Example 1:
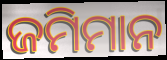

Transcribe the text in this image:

ଜମିମାନ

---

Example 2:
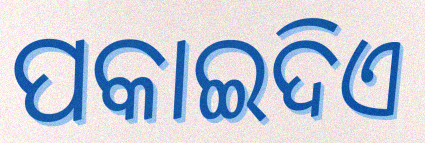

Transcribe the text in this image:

ପକାଇଦିଏ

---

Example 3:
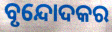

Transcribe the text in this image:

ବୃନ୍ଦୋଦକର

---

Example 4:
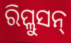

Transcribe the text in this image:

ରିପ୍ଲୁସନ୍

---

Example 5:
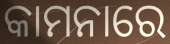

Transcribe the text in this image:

କାମନାରେ